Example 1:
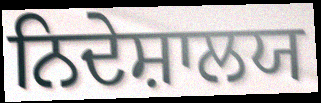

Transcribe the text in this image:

ਨਿਦੇਸ਼ਾਲਯ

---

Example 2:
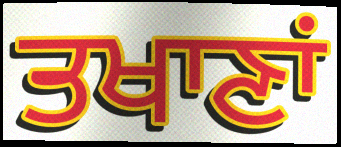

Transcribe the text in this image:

ਤਖਾਣਾਂ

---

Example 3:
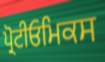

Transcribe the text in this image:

ਪ੍ਰੋਟੀਓਮਿਕਸ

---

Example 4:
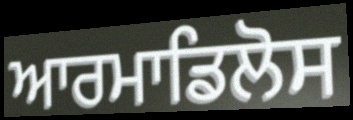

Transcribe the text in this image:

ਆਰਮਾਡਿਲੋਸ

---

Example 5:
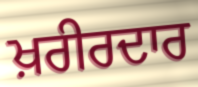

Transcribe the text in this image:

ਖ਼ਰੀਰਦਾਰ